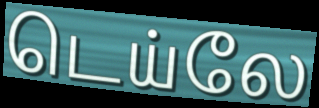
டெய்லே